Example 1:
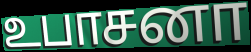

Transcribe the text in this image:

உபாசனா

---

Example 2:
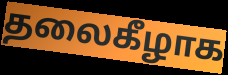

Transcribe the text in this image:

தலைகீழாக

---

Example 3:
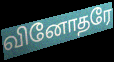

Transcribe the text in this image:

வினோதரே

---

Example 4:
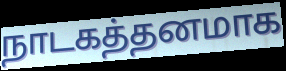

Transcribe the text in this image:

நாடகத்தனமாக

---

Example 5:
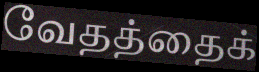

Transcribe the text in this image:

வேதத்தைக்